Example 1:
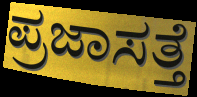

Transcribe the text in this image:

ಪ್ರಜಾಸತ್ತೆ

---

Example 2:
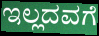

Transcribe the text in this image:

ಇಲ್ಲದವಗೆ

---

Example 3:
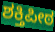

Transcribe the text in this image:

ಶಕ್ತಿಪೀಠ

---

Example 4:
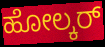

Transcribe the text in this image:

ಹೋಲ್ಕರ್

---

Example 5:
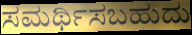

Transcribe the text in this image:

ಸಮರ್ಥಿಸಬಹುದು